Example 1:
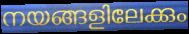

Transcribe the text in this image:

നയങ്ങളിലേക്കും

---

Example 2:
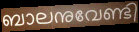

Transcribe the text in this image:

ബാലനുവേണ്ടി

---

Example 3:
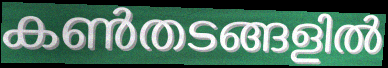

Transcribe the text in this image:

കൺതടങ്ങളിൽ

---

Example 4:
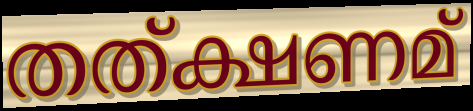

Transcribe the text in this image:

തത്ക്ഷണമ്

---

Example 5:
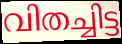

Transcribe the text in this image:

വിതച്ചിട്ട